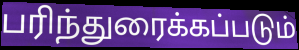
பரிந்துரைக்கப்படும்